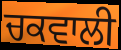
ਚਕਵਾਲੀ